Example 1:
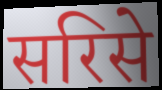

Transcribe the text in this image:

सरिसे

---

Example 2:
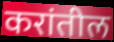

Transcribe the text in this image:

करांतील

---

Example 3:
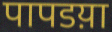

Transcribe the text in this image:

पापडय़ा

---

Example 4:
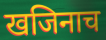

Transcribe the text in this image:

खजिनाच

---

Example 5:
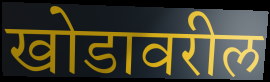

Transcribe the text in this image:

खोडावरील